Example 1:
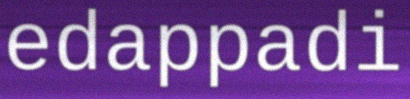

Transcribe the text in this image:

edappadi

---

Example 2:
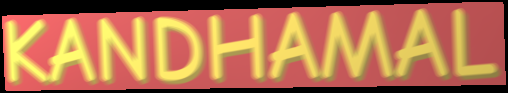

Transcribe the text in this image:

KANDHAMAL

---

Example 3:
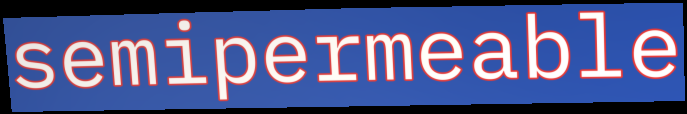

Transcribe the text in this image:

semipermeable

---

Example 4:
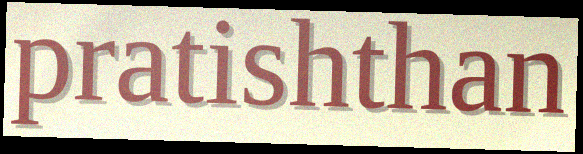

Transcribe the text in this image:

pratishthan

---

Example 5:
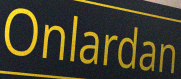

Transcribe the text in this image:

Onlardan